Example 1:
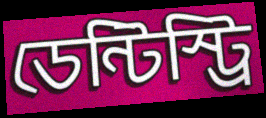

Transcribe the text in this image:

ডেন্টিস্ট্রি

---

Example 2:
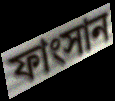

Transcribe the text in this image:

ফাংসান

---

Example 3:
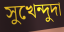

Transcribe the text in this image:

সুখেন্দুদা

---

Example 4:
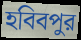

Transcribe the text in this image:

হবিবপুর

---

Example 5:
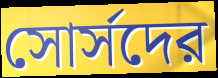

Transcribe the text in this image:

সোর্সদের